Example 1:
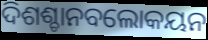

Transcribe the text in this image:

ଦିଶଶ୍ଚାନବଲୋକୟନ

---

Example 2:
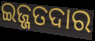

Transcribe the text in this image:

ଇଜ୍ଜତଦାର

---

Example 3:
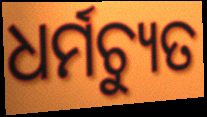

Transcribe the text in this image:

ଧର୍ମଚ୍ୟୁତ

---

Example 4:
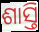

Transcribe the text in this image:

ଶାସ୍ତି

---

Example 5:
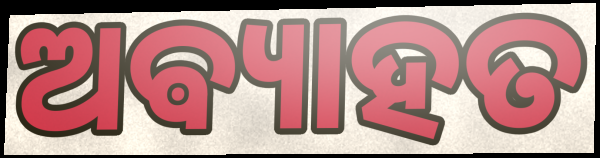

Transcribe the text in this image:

ଅଵ୍ୟାହତ